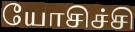
யோசிச்சி